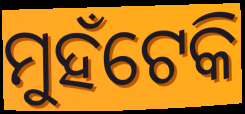
ମୁହଁଟେକି